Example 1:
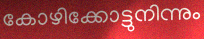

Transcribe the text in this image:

കോഴിക്കോട്ടുനിന്നും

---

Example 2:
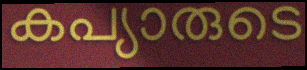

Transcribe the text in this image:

കപ്യാരുടെ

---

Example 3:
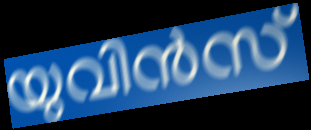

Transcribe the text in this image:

യുവിൻസ്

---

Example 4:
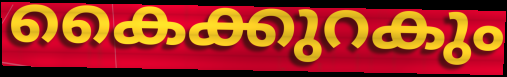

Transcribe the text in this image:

കൈക്കുറകും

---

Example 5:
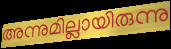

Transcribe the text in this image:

അന്നുമില്ലായിരുന്നു